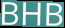
BHB